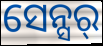
ସେନ୍ସର୍